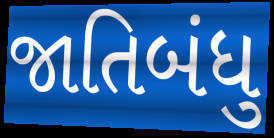
જાતિબંધુ